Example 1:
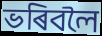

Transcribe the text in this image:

ভৰিবলৈ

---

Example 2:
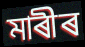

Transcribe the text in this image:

মাৰীৰ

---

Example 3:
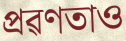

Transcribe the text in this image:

প্ৰৱণতাও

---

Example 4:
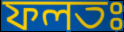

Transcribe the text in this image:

ফলতঃ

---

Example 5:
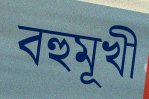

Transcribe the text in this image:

বহুমূখী